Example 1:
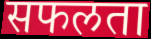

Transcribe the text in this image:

सफलता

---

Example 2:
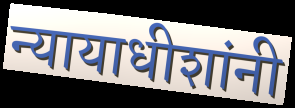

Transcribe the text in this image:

न्यायाधीशांनी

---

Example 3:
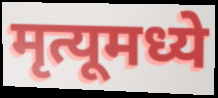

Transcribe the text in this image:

मृत्यूमध्ये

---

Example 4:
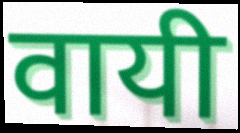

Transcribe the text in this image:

वायी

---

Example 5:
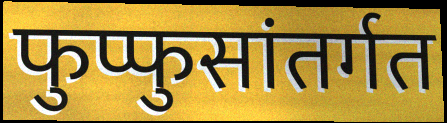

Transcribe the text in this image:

फुप्फुसांतर्गत